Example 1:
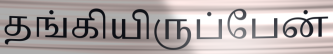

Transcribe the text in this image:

தங்கியிருப்பேன்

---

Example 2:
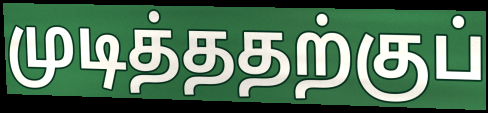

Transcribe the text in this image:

முடித்ததற்குப்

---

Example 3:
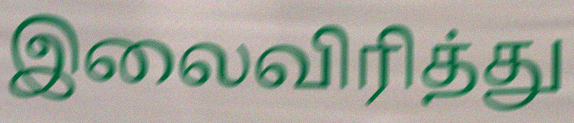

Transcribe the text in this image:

இலைவிரித்து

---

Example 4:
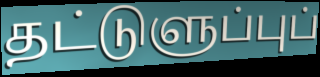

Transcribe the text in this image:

தட்டுளுப்புப்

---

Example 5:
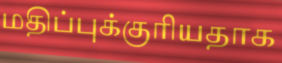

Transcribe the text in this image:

மதிப்புக்குரியதாக